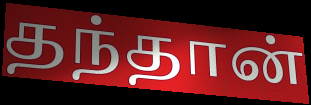
தந்தான்